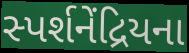
સ્પર્શનેંદ્રિયના